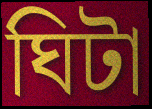
ঘিটা